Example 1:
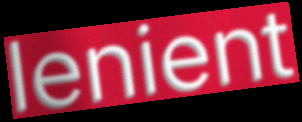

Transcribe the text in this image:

lenient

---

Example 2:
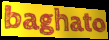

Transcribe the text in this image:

baghato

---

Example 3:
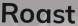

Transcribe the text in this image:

Roast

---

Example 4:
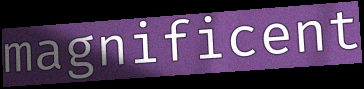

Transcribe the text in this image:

magnificent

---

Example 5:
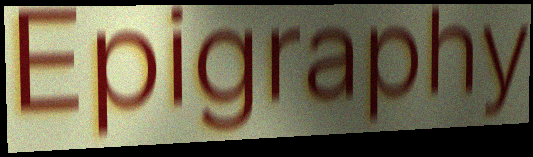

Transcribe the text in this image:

Epigraphy